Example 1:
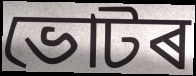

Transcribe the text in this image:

ভোটৰ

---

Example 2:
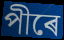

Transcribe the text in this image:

পীৰে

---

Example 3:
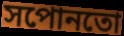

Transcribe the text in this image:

সপোনতো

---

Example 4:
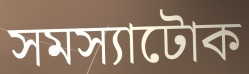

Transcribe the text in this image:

সমস্যাটোক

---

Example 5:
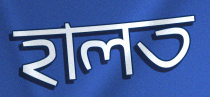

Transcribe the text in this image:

হালত